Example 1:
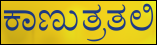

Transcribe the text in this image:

ಕಾಣುತ್ರತಲಿ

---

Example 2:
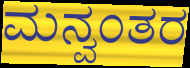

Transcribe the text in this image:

ಮನ್ವಂತರ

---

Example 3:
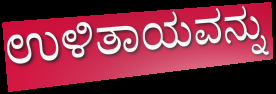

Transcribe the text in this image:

ಉಳಿತಾಯವನ್ನು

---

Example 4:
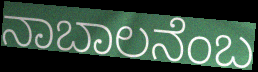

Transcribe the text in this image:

ನಾಬಾಲನೆಂಬ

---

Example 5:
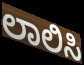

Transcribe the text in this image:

ಲಾಲಿಸಿ